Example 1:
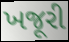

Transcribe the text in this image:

ખજૂરી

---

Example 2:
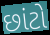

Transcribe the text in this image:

છાંટો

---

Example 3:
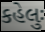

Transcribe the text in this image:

કહેલુઃ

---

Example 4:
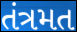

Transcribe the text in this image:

તંત્રમત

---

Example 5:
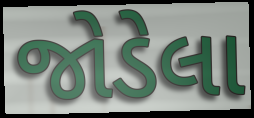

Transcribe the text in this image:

જોડેલા